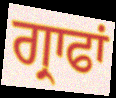
ਗ੍ਰਾਫਾਂ